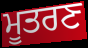
ਮੂਤਰਣ